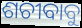
ଶଚୀବାବୁ